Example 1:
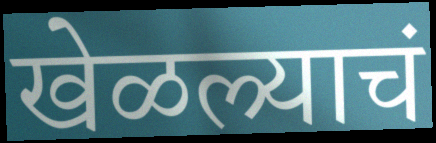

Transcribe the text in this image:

खेळल्याचं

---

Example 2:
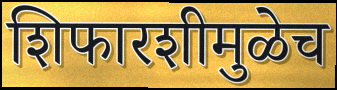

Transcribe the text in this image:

शिफारशीमुळेच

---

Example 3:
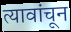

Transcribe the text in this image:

त्यावांचून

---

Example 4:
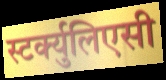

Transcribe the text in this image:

स्टर्क्युलिएसी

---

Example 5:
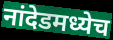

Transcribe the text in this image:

नांदेडमध्येच